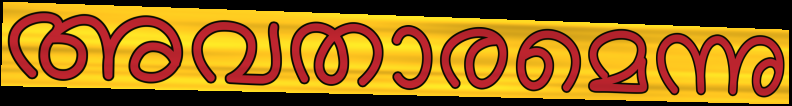
അവതാരമെന്നു